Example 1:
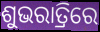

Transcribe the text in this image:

ଶୁଭରାତ୍ରିରେ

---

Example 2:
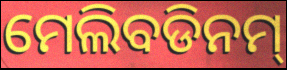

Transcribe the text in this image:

ମେଲିବଡିନମ୍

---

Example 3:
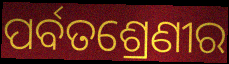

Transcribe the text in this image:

ପର୍ବତଶ୍ରେଣୀର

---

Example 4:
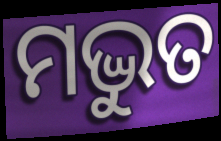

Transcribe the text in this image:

ମଦ୍ଭୁତ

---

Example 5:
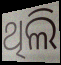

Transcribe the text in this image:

ଥିଲି